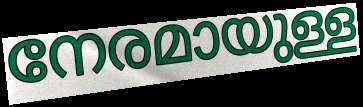
നേരമായുള്ള